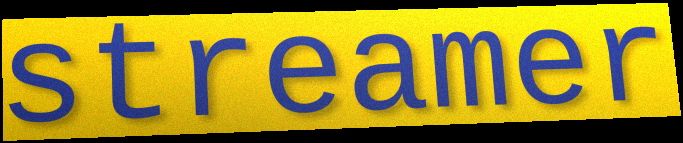
streamer